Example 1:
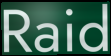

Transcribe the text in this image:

Raid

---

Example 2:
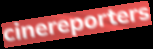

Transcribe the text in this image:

cinereporters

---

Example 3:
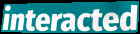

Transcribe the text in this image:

interacted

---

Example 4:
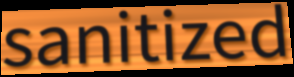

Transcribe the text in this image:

sanitized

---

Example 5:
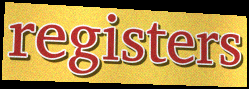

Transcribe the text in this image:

registers